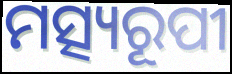
ମତ୍ସ୍ୟରୂପୀ